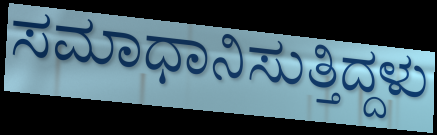
ಸಮಾಧಾನಿಸುತ್ತಿದ್ದಳು